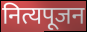
नित्यपूजन